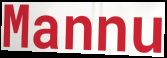
Mannu